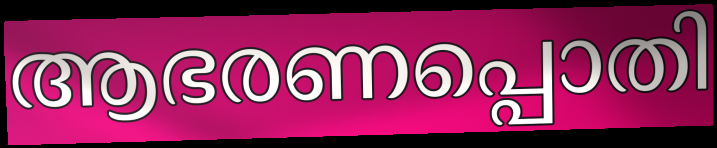
ആഭരണപ്പൊതി